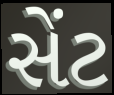
સેંટ